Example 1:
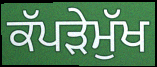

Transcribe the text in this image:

ਕੱਪੜੇਮੁੱਖ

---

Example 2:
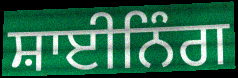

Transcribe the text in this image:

ਸ਼ਾਈਨਿੰਗ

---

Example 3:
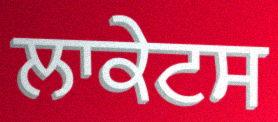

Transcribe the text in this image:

ਲਾਕੇਟਸ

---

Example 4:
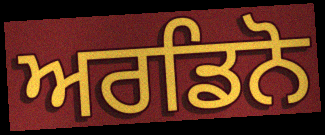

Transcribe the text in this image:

ਅਰਡਿਨੋ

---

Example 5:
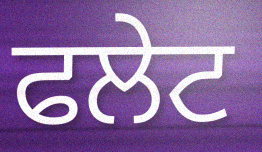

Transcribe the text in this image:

ਫਲੇਟ